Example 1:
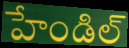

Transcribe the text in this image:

హేండిల్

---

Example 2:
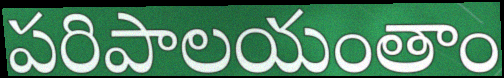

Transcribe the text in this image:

పరిపాలయంతాం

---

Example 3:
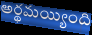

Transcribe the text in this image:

అర్థమయ్యింది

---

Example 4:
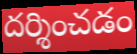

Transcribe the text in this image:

దర్శించడం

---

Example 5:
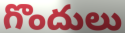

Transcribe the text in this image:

గొందులు